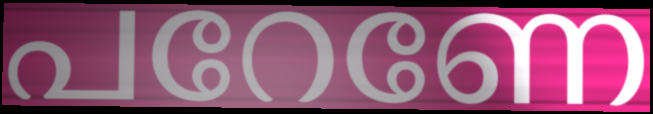
പറേണേ